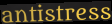
antistress